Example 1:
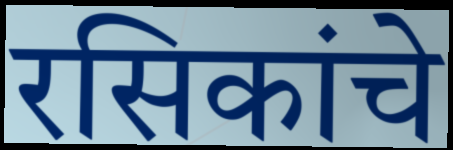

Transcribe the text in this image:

रसिकांचे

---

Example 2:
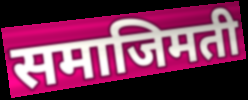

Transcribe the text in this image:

समाजिमती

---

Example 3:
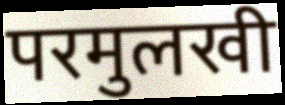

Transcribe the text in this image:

परमुलखी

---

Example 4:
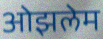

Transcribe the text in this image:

ओझलेम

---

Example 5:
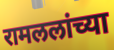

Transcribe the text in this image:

रामललांच्या